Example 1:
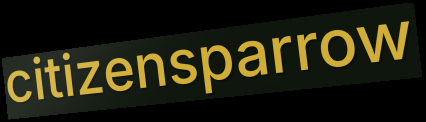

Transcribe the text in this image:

citizensparrow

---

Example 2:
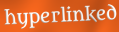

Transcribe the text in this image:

hyperlinked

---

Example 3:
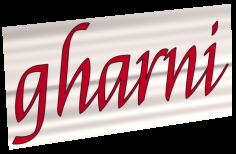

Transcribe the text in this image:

gharni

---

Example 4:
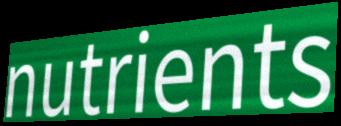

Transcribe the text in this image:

nutrients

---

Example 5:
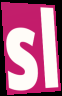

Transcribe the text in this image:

sl